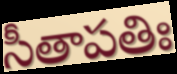
సీతాపతిః